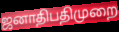
ஜனாதிபதிமுறை